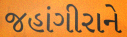
જહાંગીરાને